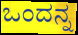
ಒಂದನ್ನ